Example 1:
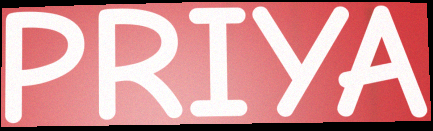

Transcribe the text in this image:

PRIYA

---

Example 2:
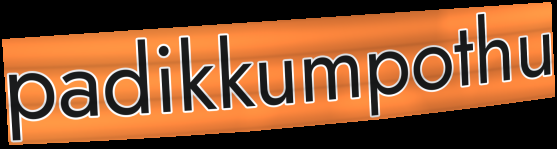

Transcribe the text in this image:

padikkumpothu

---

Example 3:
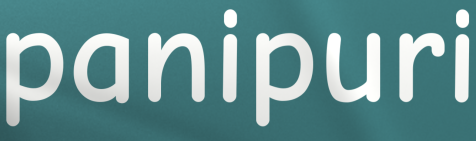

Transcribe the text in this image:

panipuri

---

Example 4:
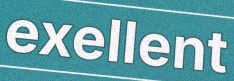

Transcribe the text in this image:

exellent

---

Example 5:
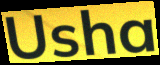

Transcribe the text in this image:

Usha